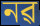
নৱ